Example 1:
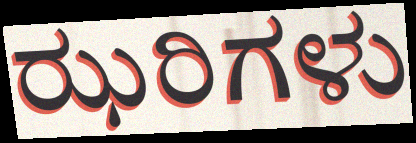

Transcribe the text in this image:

ಝರಿಗಳು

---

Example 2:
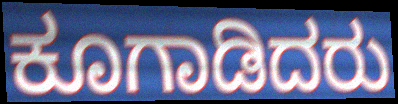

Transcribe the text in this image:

ಕೂಗಾಡಿದರು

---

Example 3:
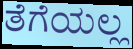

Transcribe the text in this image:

ತೆಗೆಯಲ್ಲ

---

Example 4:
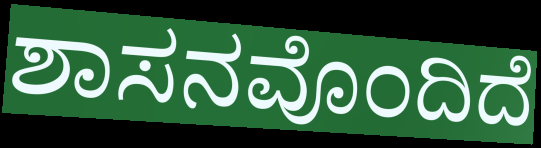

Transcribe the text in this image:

ಶಾಸನವೊಂದಿದೆ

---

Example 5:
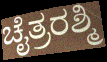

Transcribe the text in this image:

ಚೈತ್ರರಶ್ಮಿ